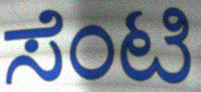
ಸೆಂಟಿ